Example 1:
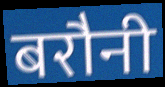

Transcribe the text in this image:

बरौनी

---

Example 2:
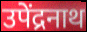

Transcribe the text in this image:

उपेंद्रनाथ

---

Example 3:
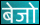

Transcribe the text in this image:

बेजो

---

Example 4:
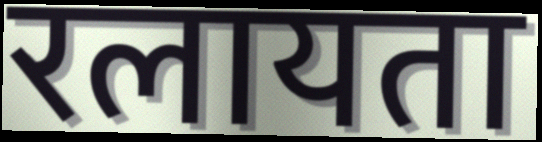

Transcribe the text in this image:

रलायता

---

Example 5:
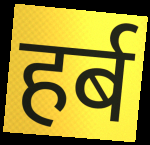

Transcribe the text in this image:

हर्ब